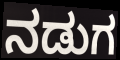
ನಡುಗ